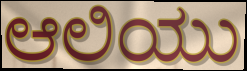
ಆಲಿಯು